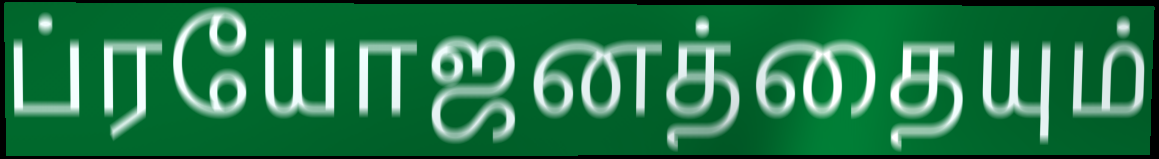
ப்ரயோஜனத்தையும்